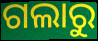
ଗଲାରୁ